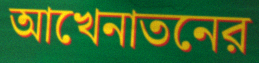
আখেনাতনের